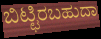
ಬಿಟ್ಟಿರಬಹುದಾ